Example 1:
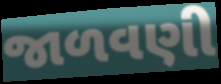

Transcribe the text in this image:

જાળવણી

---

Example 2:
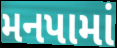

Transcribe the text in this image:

મનપામાં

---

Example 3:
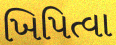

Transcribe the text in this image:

ખિપિત્વા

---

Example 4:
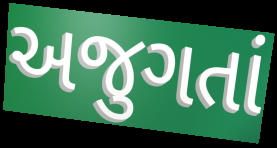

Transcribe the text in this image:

અજુગતાં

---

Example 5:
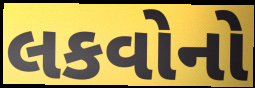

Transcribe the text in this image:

લકવોનો